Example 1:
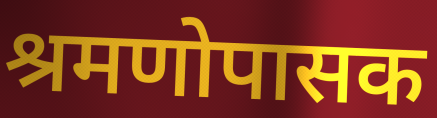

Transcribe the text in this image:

श्रमणोपासक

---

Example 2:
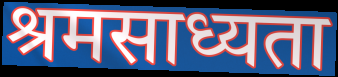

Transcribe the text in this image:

श्रमसाध्यता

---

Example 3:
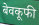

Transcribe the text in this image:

बेवकूफी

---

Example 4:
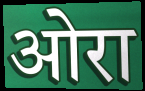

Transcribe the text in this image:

ओरा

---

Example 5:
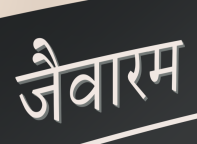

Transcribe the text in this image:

जैवारम